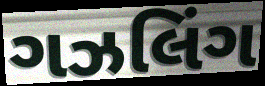
ગઝલિંગ